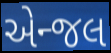
એન્જલ